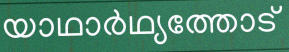
യാഥാർഥ്യത്തോട്